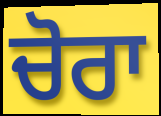
ਚੋਰਾ